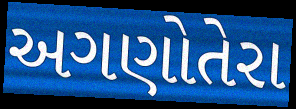
અગણોતેરા